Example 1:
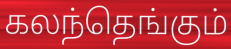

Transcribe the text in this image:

கலந்தெங்கும்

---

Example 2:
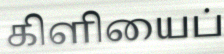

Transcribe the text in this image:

கிளியைப்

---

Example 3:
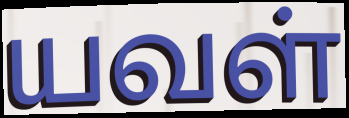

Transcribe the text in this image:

யவள்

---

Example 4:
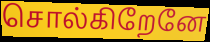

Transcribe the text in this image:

சொல்கிறேனே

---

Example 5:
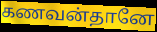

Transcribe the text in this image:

கணவன்தானே